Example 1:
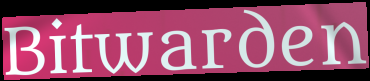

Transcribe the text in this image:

Bitwarden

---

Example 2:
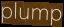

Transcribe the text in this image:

plump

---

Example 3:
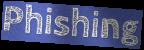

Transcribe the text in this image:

Phishing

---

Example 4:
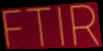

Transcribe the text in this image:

FTIR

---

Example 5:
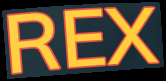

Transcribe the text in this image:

REX